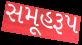
સમૂહરૂપ